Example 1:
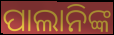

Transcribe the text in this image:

ପାଲାନିଙ୍କ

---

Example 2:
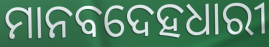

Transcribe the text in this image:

ମାନବଦେହଧାରୀ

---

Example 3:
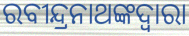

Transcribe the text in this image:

ରବୀନ୍ଦ୍ରନାଥଙ୍କଦ୍ୱାରା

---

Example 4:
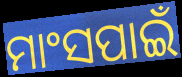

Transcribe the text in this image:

ମାଂସପାଇଁ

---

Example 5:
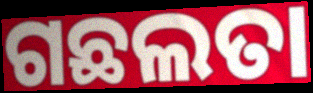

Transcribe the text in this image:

ଗଛଲତା